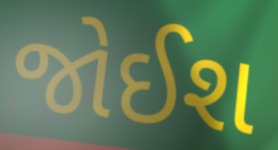
જોઈશ